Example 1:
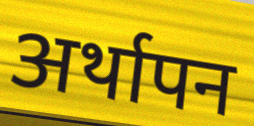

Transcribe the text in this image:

अर्थापन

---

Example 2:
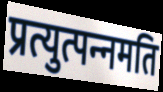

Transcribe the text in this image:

प्रत्युत्पन्नमति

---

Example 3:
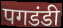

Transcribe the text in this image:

पगडंडी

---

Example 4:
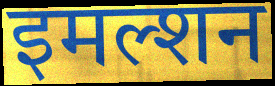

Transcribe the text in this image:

इमल्शन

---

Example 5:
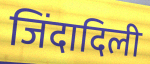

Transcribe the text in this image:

जिंदादिली